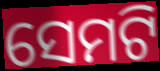
ସେମଟି